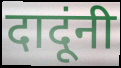
दादूंनी